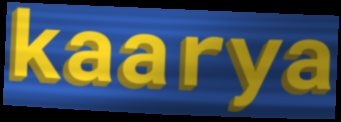
kaarya